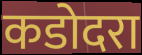
कडोदरा